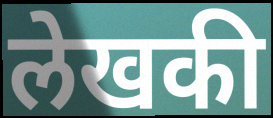
लेखकी